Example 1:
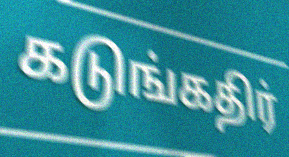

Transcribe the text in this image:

கடுங்கதிர்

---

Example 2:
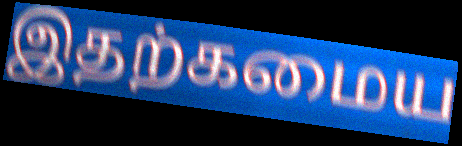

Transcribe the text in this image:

இதற்கமைய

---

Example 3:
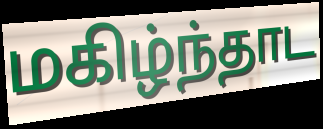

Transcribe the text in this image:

மகிழ்ந்தாட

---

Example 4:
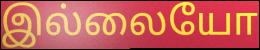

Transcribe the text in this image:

இல்லையோ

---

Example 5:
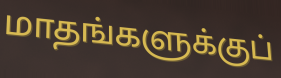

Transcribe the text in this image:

மாதங்களுக்குப்